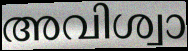
അവിശ്വാ